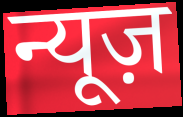
न्यूज़